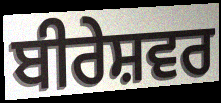
ਬੀਰੇਸ਼ਵਰ